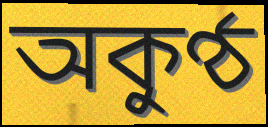
অকুণ্ঠ